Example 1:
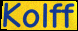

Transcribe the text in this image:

Kolff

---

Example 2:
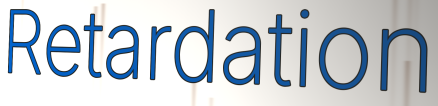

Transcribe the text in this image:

Retardation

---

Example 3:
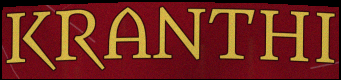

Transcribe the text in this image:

KRANTHI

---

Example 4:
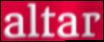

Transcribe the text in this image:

altar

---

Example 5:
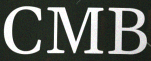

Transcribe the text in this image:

CMB